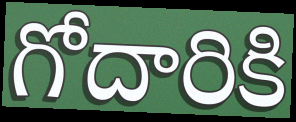
గోదారికి